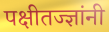
पक्षीतज्ज्ञांनी